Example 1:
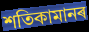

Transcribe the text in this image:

শতিকামানৰ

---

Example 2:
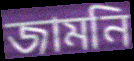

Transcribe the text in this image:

জামনি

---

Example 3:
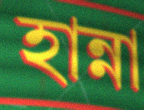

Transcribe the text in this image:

হান্না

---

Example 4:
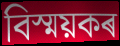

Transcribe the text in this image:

বিস্ময়কৰ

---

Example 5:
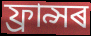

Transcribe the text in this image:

ফ্ৰান্সৰ